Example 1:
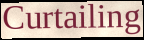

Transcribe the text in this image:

Curtailing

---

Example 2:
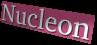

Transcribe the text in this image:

Nucleon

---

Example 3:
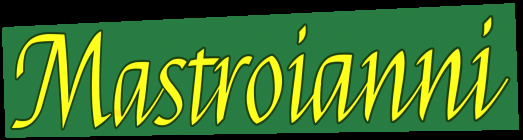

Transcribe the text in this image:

Mastroianni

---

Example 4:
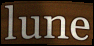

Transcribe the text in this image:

lune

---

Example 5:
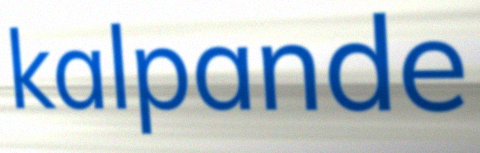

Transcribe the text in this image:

kalpande